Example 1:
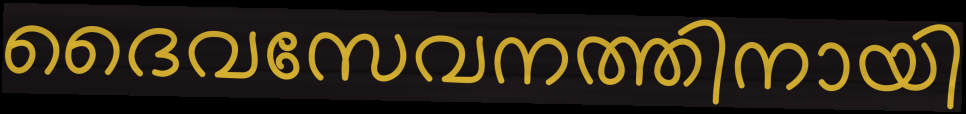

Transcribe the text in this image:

ദൈവസേവനത്തിനായി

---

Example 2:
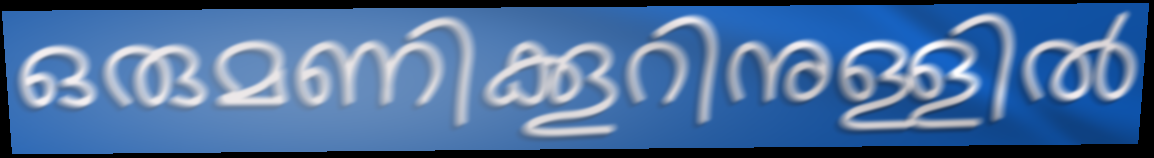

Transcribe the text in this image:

ഒരുമണിക്കൂറിനുള്ളിൽ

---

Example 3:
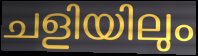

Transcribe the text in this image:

ചളിയിലും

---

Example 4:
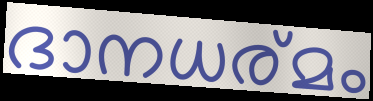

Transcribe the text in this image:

ദാനധര്മം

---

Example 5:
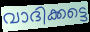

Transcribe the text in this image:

വാദിക്കട്ടെ